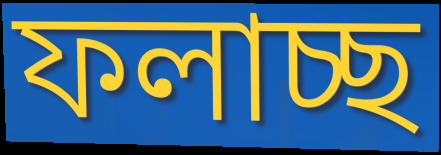
ফলাচ্ছ